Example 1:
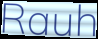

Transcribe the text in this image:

Rauh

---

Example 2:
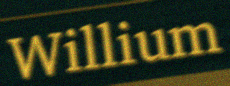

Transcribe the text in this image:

Willium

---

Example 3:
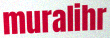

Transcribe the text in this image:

muralihr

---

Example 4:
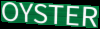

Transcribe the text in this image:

OYSTER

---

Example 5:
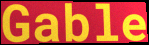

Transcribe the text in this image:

Gable